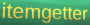
itemgetter